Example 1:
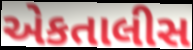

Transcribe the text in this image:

એકતાલીસ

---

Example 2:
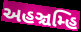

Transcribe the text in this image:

અહઞ્ચમ્હિ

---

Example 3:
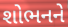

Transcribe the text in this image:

શોભનને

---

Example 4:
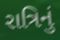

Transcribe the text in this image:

રાત્રિનું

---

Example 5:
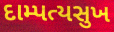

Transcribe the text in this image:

દામ્પત્યસુખ